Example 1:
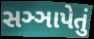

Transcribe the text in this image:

સઞ્ઞાપેતું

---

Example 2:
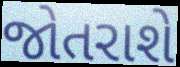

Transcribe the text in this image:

જોતરાશે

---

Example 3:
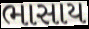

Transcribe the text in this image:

ભાસાય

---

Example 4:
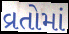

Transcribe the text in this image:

વ્રતોમાં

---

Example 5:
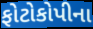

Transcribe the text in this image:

ફોટોકોપીના